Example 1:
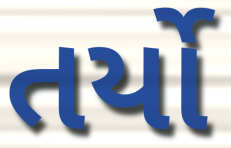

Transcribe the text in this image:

તર્યો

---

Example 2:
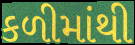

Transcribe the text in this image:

કળીમાંથી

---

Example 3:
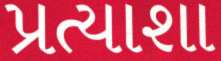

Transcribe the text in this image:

પ્રત્યાશા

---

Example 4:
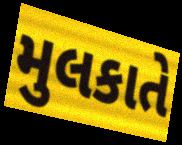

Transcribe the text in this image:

મુલકાતે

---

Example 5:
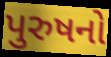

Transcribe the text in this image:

પુરુષનો